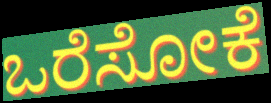
ಒರೆಸೋಕೆ